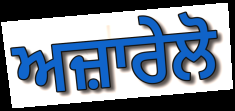
ਅਜ਼ਾਰੇਲੋ